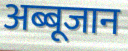
अब्बूजान